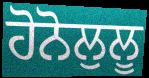
ਹੋਨੋਲੁਲੂ